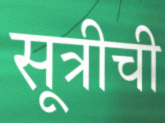
सूत्रीची